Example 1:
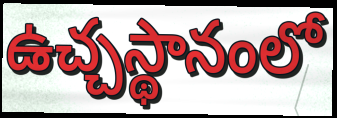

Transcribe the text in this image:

ఉచ్చస్థానంలో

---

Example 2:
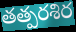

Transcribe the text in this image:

తత్పరశిర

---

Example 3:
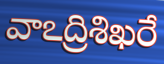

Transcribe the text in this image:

వాఽద్రిశిఖరే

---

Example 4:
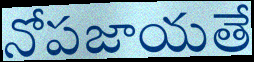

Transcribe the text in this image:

నోపజాయతే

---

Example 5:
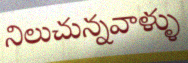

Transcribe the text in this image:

నిలుచున్నవాళ్ళు